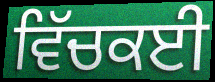
ਵਿੱਚਕਈ